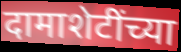
दामाशेटींच्या